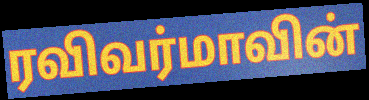
ரவிவர்மாவின்